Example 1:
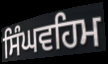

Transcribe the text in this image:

ਸਿੰਘਵਹਿਮ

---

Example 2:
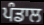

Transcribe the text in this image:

ਪੰਡਾਲ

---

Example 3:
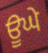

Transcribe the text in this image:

ਊਘੇ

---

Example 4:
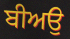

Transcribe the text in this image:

ਬੀਅਉ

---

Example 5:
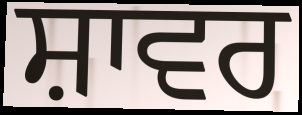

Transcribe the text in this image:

ਸ਼ਾਵਰ